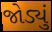
જોડ્યું